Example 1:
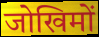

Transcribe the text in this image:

जोखिमों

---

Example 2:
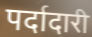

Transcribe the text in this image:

पर्दादारी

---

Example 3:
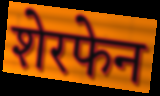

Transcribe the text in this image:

शेरफेन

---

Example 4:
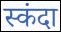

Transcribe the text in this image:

स्कंदा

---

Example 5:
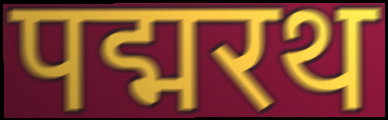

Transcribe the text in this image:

पद्मरथ